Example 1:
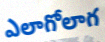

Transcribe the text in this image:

ఎలాగోలాగ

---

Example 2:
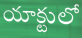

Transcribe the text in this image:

యాక్టులో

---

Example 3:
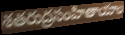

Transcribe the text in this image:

శతరుద్రసంహితాయాం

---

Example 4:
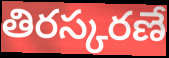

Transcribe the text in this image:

తిరస్కరణే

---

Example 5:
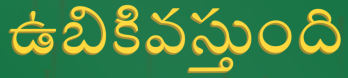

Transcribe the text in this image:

ఉబికివస్తుంది